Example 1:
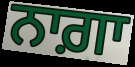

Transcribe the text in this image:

ਨਾਗ਼ਾ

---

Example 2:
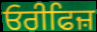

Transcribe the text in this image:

ਓਰੀਫਿਜ਼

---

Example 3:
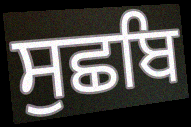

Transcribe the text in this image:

ਸੁਛਬਿ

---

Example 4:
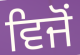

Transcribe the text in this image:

ਵਿਜੋਂ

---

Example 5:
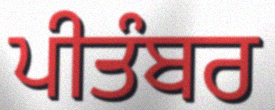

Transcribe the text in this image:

ਪੀਤੰਬਰ